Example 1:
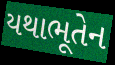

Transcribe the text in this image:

યથાભૂતેન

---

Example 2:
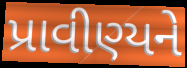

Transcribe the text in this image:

પ્રાવીણ્યને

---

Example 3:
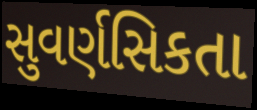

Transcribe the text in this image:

સુવર્ણસિકતા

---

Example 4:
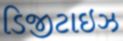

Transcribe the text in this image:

ડિજીટાઇઝ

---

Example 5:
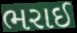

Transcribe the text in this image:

ભરાઈ